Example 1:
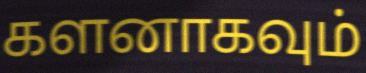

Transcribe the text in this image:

களனாகவும்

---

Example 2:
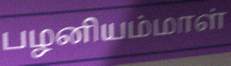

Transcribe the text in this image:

பழனியம்மாள்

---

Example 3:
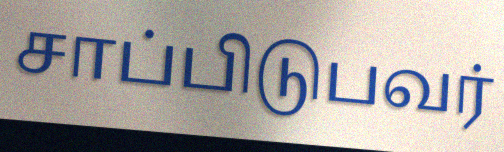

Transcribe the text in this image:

சாப்பிடுபவர்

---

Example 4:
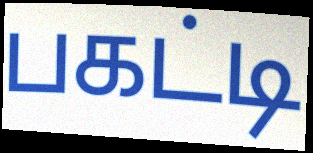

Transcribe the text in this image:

பகட்டி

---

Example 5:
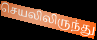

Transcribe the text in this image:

செயலிலிருந்து